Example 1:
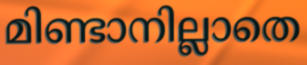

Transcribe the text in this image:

മിണ്ടാനില്ലാതെ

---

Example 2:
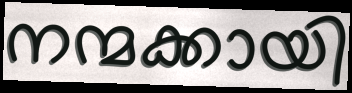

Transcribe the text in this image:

നന്മക്കായി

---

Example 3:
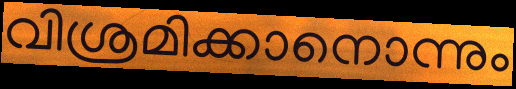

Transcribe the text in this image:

വിശ്രമിക്കാനൊന്നും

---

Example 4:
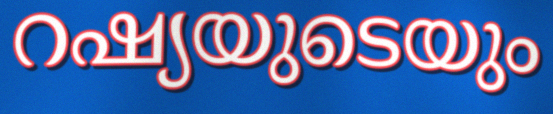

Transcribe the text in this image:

റഷ്യയുടെയും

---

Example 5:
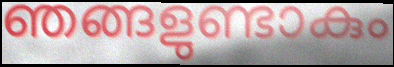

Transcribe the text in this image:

ഞങ്ങളുണ്ടാകും